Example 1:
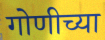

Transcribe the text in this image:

गोणीच्या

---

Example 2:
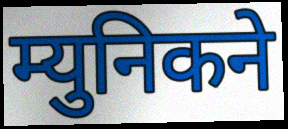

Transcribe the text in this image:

म्युनिकने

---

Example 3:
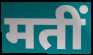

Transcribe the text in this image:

मतीं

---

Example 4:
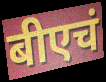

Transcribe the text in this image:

बीएचं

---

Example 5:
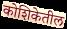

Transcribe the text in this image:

कोशिकेतील